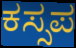
ಕಸ್ಸಪ